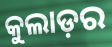
କୁଲାଡ଼ର